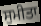
ਸੁਮੀਤਾ